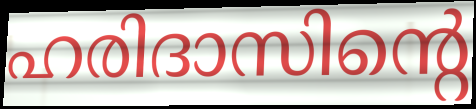
ഹരിദാസിന്റെ